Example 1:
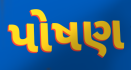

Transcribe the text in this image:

પોષણ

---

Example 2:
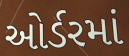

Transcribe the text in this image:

ઓર્ડરમાં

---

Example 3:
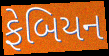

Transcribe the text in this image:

ફેબિયન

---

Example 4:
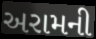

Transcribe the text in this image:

અરામની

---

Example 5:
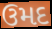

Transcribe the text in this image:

ઉમદ